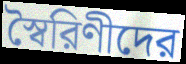
স্বৈরিণীদের